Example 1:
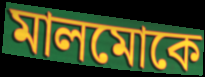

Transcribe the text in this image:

মালমোকে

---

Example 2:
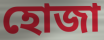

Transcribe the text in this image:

হোজা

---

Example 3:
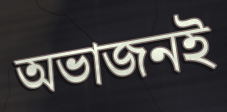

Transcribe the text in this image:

অভাজনই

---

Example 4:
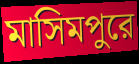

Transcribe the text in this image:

মাসিমপুরে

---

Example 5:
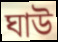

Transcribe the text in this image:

ঘাউ